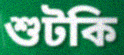
শুটকি